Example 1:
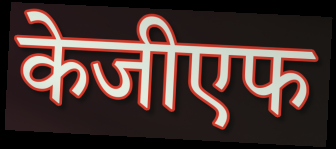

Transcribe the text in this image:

केजीएफ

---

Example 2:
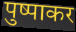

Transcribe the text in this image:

पुष्पाकर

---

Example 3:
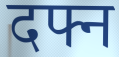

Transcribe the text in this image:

दफ्न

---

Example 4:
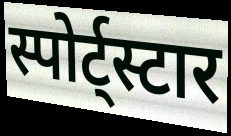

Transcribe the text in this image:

स्पोर्ट्स्टार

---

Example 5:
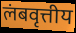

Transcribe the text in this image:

लंबवृत्तीय